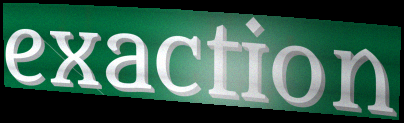
exaction